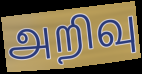
அறிவு